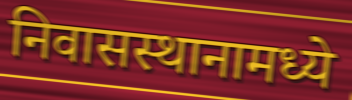
निवासस्थानामध्ये